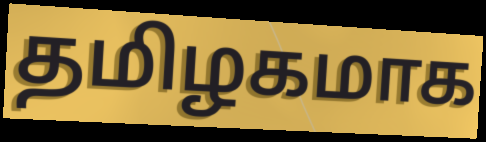
தமிழகமாக